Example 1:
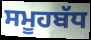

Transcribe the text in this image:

ਸਮੂਹਬੱਧ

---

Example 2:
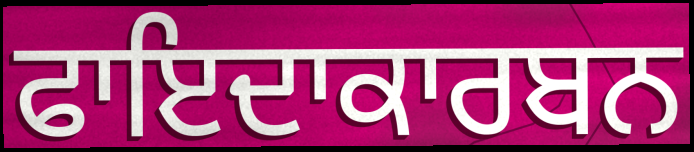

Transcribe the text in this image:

ਫਾਇਦਾਕਾਰਬਨ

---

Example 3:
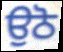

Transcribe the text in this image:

ਉਠੋ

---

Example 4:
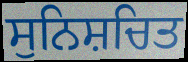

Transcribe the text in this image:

ਸੁਨਿਸ਼ਚਿਤ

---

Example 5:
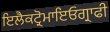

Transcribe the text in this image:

ਇਲੈਕਟ੍ਰੋਮਾਇਓਗ੍ਰਾਫੀ